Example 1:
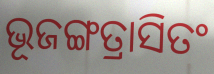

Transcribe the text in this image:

ଭୂଜଙ୍ଗତ୍ରାସିତଂ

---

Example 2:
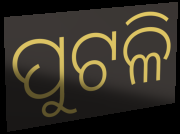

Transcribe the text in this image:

ପୁଟଳି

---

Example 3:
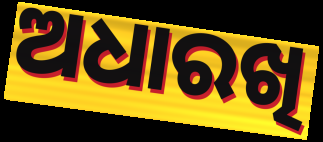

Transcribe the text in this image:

ଅଧାରଖି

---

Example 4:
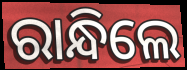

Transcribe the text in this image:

ରାନ୍ଧିଲେ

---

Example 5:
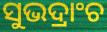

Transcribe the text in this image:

ସୁଭଦ୍ରାଂଚ